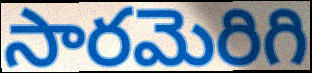
సారమెరిగి